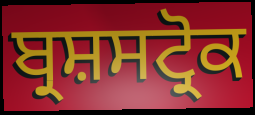
ਬ੍ਰਸ਼ਸਟ੍ਰੋਕ